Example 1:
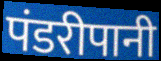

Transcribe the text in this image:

पंडरीपानी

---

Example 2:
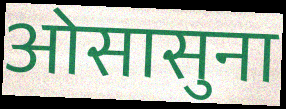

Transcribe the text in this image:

ओसासुना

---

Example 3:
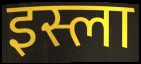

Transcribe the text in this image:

इस्ला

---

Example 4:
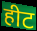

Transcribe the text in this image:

हीट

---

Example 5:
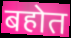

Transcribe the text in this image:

बहोत